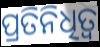
ପ୍ରତିନିଧିତ୍ୱ